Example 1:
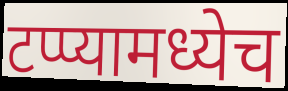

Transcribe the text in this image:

टप्प्यामध्येच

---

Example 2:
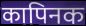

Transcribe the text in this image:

कापिनक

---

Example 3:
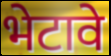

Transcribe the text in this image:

भेटावे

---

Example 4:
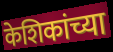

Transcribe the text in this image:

केशिकांच्या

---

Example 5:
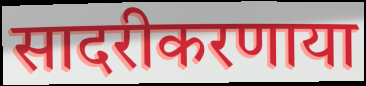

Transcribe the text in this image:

सादरीकरणाया